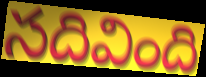
సదివింది